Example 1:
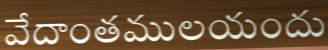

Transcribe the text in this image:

వేదాంతములయందు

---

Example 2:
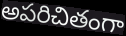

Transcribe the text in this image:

అపరిచితంగా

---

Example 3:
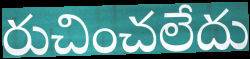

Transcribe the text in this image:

రుచించలేదు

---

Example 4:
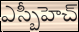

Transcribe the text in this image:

ఎస్బీహెచ్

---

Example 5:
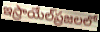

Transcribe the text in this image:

ఇస్రాయేల్‌ప్రజలలో